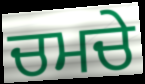
ਚਮਚੇ